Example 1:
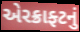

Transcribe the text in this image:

એરક્રાફ્ટનું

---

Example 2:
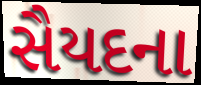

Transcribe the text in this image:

સૈયદના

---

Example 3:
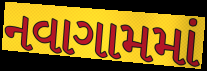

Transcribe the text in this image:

નવાગામમાં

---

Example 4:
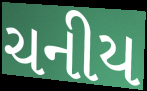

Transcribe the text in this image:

ચનીય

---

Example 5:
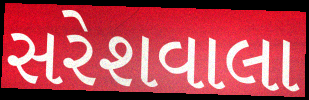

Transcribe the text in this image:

સરેશવાલા